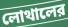
লোথালের